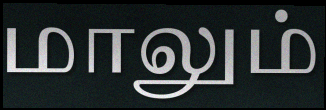
மாலும்